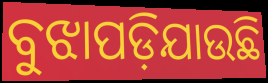
ବୁଝାପଡ଼ିଯାଉଛି